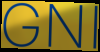
GNI